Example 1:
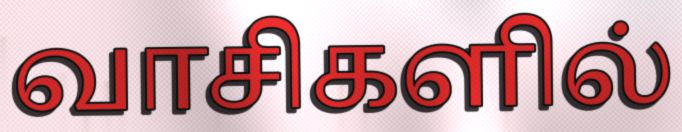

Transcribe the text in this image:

வாசிகளில்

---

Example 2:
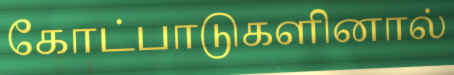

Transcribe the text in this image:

கோட்பாடுகளினால்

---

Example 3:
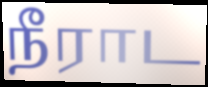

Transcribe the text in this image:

நீராட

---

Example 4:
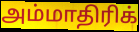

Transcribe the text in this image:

அம்மாதிரிக்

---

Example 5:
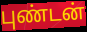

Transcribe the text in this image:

புண்டன்